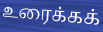
உரைக்கக்